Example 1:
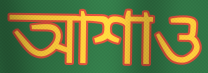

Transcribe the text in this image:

আশাও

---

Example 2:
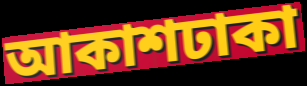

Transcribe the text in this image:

আকাশঢাকা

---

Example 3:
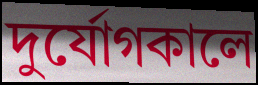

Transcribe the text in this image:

দুর্যোগকালে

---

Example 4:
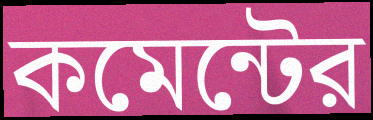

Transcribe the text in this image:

কমেন্টের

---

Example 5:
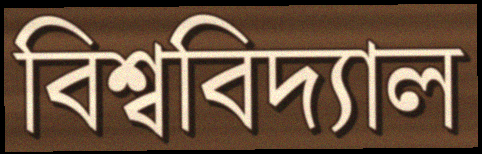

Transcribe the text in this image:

বিশ্ববিদ্যাল